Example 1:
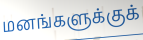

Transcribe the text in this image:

மனங்களுக்குக்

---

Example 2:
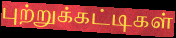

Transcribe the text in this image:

புற்றுக்கட்டிகள்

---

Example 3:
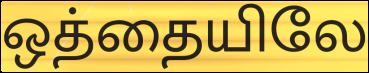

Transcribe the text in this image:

ஒத்தையிலே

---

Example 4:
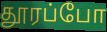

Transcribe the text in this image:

தூரப்போ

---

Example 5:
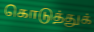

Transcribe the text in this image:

கொடுத்துக்